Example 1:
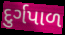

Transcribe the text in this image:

દુર્ગપાળ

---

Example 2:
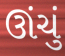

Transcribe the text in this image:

ઊંચું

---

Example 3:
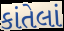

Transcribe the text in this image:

કાંતેલાં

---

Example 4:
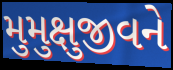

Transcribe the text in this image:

મુમુક્ષુજીવને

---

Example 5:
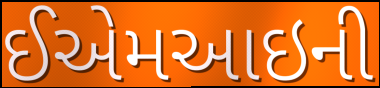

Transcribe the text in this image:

ઈએમઆઇની